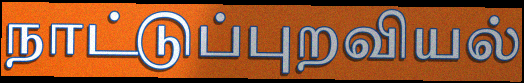
நாட்டுப்புறவியல்